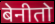
बेनीतो